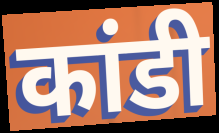
कांडी